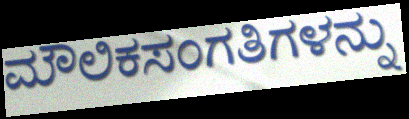
ಮೌಲಿಕಸಂಗತಿಗಳನ್ನು